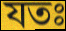
যতঃ